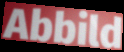
Abbild